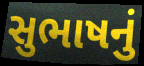
સુભાષનું